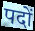
पदों